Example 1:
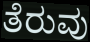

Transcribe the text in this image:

ತೆರುವು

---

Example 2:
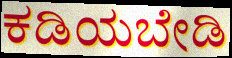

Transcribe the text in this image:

ಕಡಿಯಬೇಡಿ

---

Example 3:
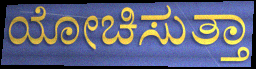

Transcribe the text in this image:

ಯೋಚಿಸುತ್ತಾ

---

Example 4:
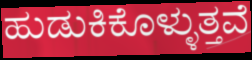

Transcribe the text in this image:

ಹುಡುಕಿಕೊಳ್ಳುತ್ತವೆ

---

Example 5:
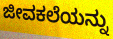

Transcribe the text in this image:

ಜೀವಕಲೆಯನ್ನು